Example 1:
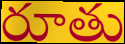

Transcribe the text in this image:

రూతు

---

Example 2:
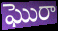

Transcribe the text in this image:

ఘొరా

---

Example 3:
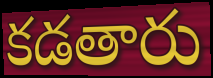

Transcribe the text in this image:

కడతారు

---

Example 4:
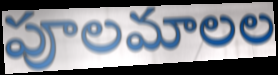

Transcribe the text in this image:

పూలమాలల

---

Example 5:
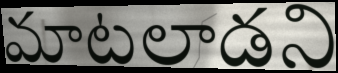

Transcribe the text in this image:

మాటలాడని